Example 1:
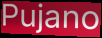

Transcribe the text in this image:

Pujano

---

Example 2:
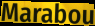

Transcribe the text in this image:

Marabou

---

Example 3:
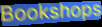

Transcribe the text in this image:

Bookshops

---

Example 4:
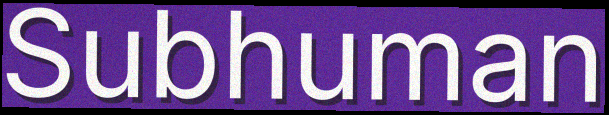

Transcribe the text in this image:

Subhuman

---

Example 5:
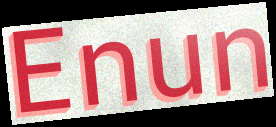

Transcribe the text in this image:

Enun